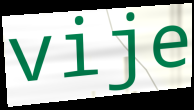
vije